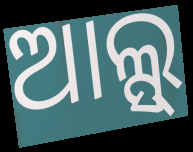
ଆଲ୍ସ୍